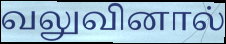
வலுவினால்